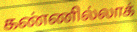
கண்ணில்லாக்